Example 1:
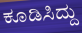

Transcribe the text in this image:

ಕೂಡಿಸಿದ್ದು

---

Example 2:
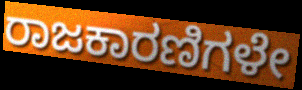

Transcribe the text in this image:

ರಾಜಕಾರಣಿಗಳೇ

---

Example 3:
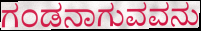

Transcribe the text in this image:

ಗಂಡನಾಗುವವನು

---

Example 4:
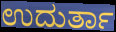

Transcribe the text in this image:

ಉದುರ್ತಾ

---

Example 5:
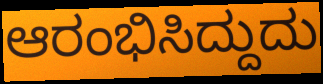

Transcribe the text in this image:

ಆರಂಭಿಸಿದ್ದುದು